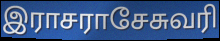
இராசராசேசுவரி